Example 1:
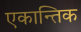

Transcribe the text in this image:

एकान्तिक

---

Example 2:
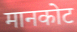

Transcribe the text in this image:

मानकोट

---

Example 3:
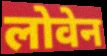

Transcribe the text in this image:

लोवेन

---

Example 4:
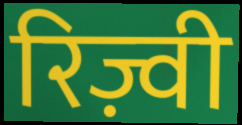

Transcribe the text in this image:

रिज़्वी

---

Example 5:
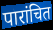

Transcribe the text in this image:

पारांचित